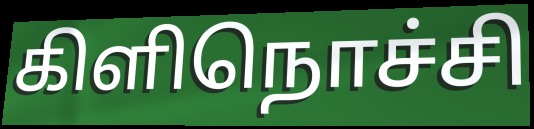
கிளிநொச்சி